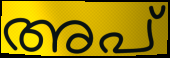
അപ്